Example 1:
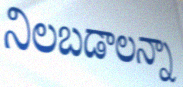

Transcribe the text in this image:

నిలబడాలన్నా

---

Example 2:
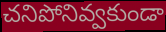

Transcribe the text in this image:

చనిపోనివ్వకుండా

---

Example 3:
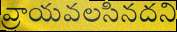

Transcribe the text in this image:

వ్రాయవలసినదని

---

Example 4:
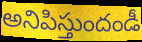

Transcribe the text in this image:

అనిపిస్తుందండీ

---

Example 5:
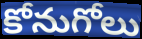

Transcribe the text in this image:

కోనుగోలు